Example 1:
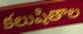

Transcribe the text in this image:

కలుషితాల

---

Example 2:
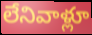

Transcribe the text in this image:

లేనివాళ్లూ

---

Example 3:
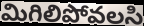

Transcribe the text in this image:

మిగిలిపోవలసి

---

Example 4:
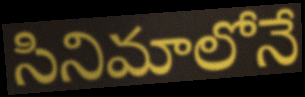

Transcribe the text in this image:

సినిమాలోనే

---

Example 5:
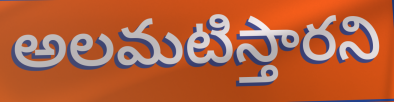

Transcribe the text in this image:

అలమటిస్తారని